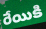
రేయికి